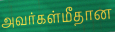
அவர்கள்மீதான